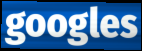
googles